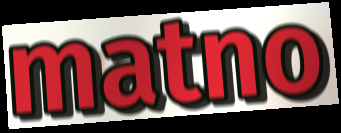
matno